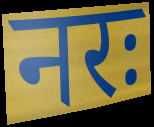
नरः